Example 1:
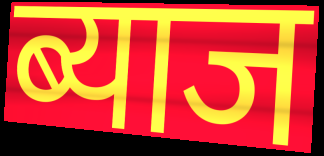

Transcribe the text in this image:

ब्याज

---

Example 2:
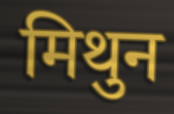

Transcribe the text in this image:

मिथुन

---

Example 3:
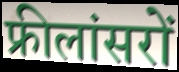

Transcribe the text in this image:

फ्रीलांसरों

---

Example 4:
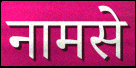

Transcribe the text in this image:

नामसे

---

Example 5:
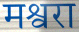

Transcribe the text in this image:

मश्वरा